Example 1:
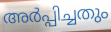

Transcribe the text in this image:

അർപ്പിച്ചതും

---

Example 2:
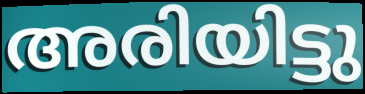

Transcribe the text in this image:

അരിയിട്ടു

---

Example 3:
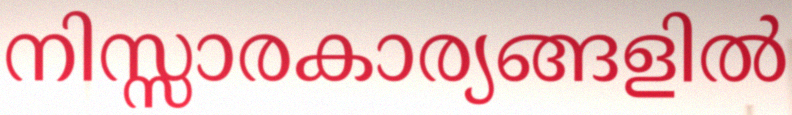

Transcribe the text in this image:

നിസ്സാരകാര്യങ്ങളിൽ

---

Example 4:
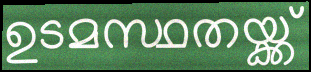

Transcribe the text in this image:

ഉടമസ്ഥതയ്ക്ക്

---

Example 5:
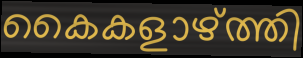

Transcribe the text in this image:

കൈകളാഴ്ത്തി